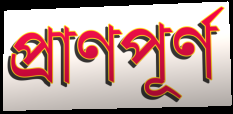
প্রাণপূর্ণ